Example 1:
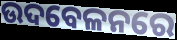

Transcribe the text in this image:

ଉଦବେଳନରେ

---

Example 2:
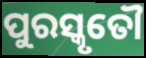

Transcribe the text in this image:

ପୁରସ୍କୃତୌ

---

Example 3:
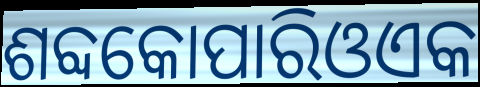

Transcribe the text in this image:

ଶବ୍ଦକୋପାରିଓଏକ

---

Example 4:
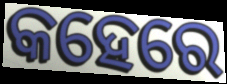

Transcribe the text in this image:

କହେରେ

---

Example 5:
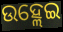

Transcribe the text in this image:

ଉହ୍ଲେଇ